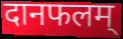
दानफलम्